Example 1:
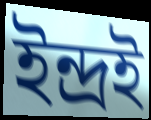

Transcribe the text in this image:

ইন্দ্ৰই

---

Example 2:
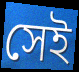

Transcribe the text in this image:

সেই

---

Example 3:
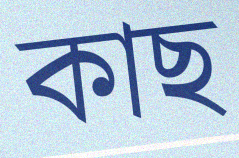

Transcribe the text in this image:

কাছ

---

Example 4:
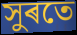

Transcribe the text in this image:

সুৰতে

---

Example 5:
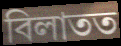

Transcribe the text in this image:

বিলাতত